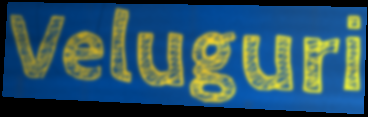
Veluguri